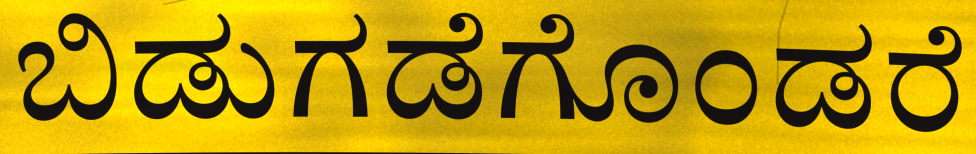
ಬಿಡುಗಡೆಗೊಂಡರೆ